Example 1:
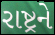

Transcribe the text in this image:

રાષ્ટ્રને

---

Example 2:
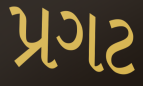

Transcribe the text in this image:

પ્રગટ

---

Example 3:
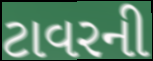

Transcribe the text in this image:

ટાવરની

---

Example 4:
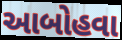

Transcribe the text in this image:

આબોહવા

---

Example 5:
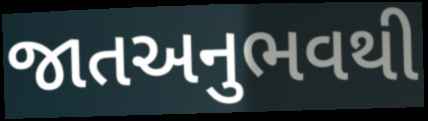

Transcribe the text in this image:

જાતઅનુભવથી